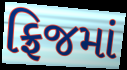
ફ્રિજમાં